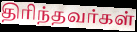
திரிந்தவர்கள்